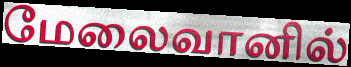
மேலைவானில்